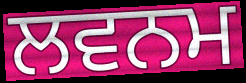
ਲਵਨਮ